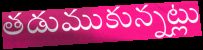
తడుముకున్నట్లు